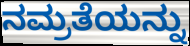
ನಮ್ರತೆಯನ್ನು